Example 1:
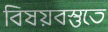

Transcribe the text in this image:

বিষয়বস্তুতে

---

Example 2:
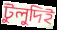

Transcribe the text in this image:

টুলুদিই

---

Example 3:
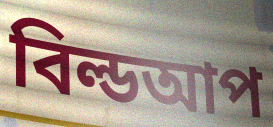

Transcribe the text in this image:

বিল্ডআপ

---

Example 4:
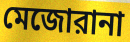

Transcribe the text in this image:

মেজোরানা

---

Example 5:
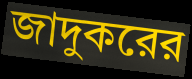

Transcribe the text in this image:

জাদুকরের